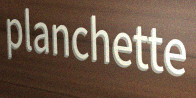
planchette